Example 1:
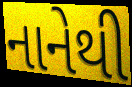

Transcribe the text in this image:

નાનેથી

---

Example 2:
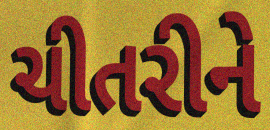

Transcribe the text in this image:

ચીતરીને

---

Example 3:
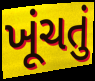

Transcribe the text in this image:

ખૂંચતું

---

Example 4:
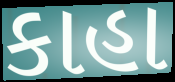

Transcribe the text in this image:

કાહા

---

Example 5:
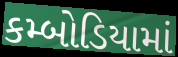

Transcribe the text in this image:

કમ્બોડિયામાં